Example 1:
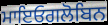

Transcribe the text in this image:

ਮਾਇਓਗਲੋਬਿਨ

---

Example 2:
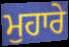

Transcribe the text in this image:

ਮੁਹਾਰੇ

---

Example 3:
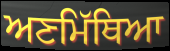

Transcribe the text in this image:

ਅਣਮਿੱਥਿਆ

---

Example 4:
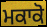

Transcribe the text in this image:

ਮਕਾਕੋ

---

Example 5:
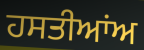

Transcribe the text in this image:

ਹਸਤੀਆਂਅ